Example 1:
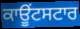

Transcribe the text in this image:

ਕਾਊਂਟਸਟਾਰ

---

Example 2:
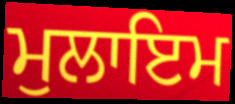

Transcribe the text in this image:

ਮੁਲਾਇਮ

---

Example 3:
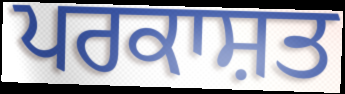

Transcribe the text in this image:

ਪਰਕਾਸ਼ਤ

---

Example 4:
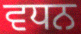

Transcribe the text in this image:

ਵਧਨ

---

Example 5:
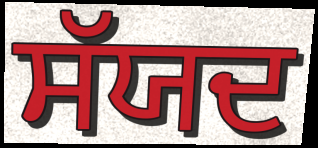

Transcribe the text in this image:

ਸੱਯਦ